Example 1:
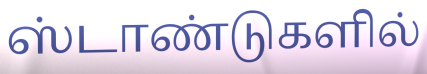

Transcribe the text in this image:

ஸ்டாண்டுகளில்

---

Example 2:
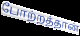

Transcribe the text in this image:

போற்றத்தான்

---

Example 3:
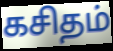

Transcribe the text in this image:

கசிதம்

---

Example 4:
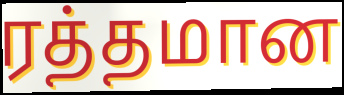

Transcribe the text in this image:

ரத்தமான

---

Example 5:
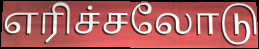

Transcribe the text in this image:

எரிச்சலோடு